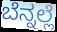
ಬೆನ್ನಲ್ಲೆ